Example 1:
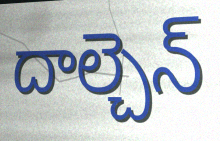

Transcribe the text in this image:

దాల్చెన్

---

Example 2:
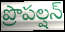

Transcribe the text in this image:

ప్రొపల్షన్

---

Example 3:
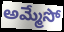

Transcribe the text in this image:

అమ్మేసో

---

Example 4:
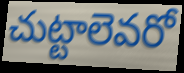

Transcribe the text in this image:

చుట్టాలెవరో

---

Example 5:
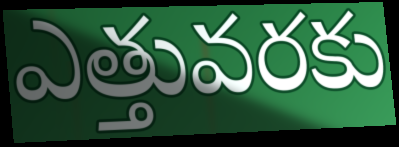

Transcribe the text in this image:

ఎత్తువరకు